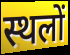
स्थलों